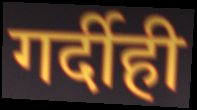
गर्दीही